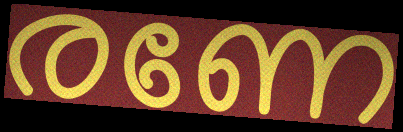
രണേ